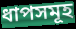
ধাপসমূহ